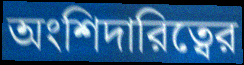
অংশিদারিত্বের